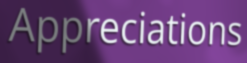
Appreciations